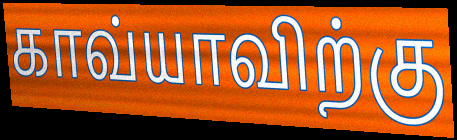
காவ்யாவிற்கு